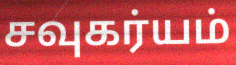
சவுகர்யம்